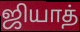
ஜியாத்